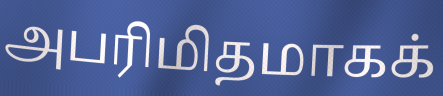
அபரிமிதமாகக்